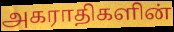
அகராதிகளின்